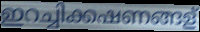
ഇറച്ചിക്കഷണങ്ങള്